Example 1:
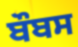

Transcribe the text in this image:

ਬੌਬਸ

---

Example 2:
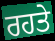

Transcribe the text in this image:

ਰਹਤੇ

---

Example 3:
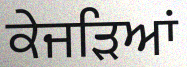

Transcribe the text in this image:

ਕੇਜੜਿਆਂ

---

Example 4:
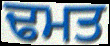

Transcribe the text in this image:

ਢਮਤ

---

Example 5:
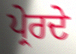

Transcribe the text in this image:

ਪ੍ਰੇਰਦੇ